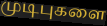
முடிபுகளை